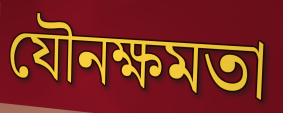
যৌনক্ষমতা